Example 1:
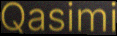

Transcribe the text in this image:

Qasimi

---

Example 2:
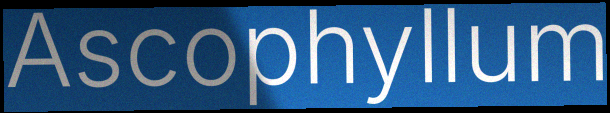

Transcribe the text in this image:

Ascophyllum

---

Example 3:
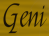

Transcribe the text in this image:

Geni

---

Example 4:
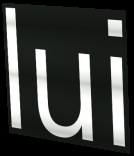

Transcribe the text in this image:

lui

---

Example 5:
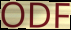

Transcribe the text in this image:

ODF